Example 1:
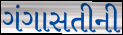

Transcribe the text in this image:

ગંગાસતીની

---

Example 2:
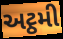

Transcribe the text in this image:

અટ્ઠમી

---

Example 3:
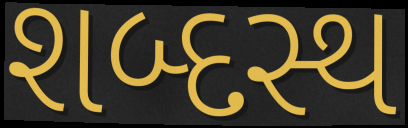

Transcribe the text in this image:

શબ્દસ્થ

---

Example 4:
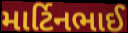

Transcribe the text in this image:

માર્ટિનભાઈ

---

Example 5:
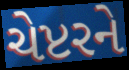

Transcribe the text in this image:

ચેપ્ટરને